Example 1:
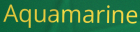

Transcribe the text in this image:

Aquamarine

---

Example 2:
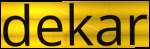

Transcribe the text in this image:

dekar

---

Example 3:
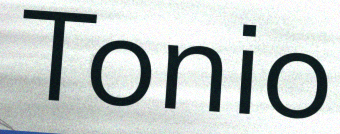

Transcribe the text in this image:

Tonio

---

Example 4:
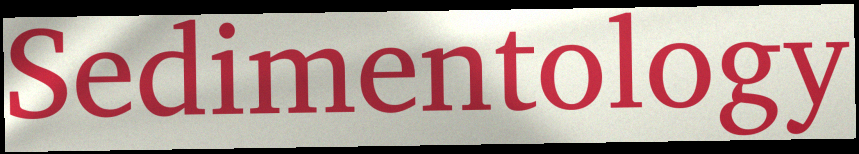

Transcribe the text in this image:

Sedimentology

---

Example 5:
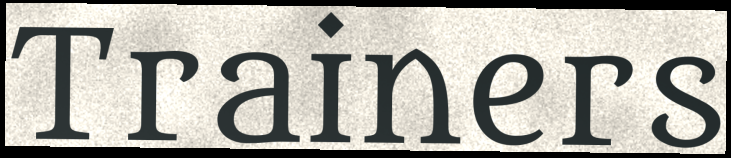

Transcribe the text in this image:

Trainers